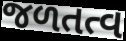
જળતત્વ